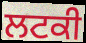
ਲਟਕੀ